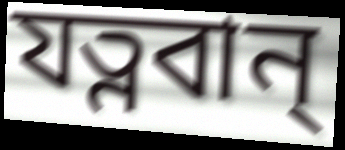
যত্নবান্